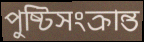
পুষ্টিসংক্রান্ত